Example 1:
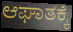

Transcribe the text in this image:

ಆಘಾತಕ್ಕೆ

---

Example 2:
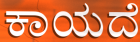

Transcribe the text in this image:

ಕಾಯದೆ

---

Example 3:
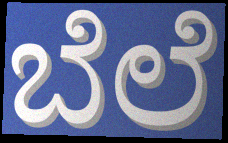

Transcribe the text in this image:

ಬೆಲೆ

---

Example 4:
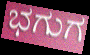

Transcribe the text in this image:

ಭಗುಗ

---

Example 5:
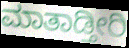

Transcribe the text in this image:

ಮಾತಾಡ್ತೀರಿ